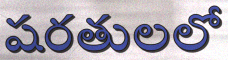
షరతులలో